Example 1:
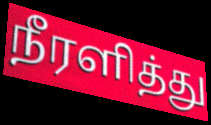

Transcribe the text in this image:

நீரளித்து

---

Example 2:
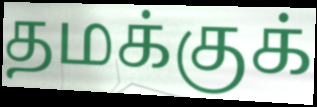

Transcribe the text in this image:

தமக்குக்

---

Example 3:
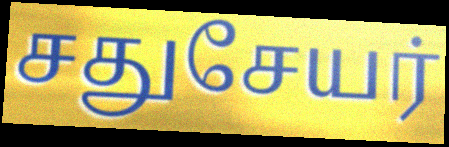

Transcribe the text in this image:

சதுசேயர்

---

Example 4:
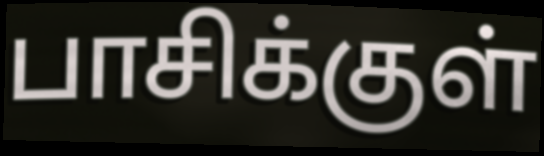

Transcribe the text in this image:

பாசிக்குள்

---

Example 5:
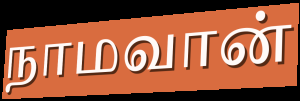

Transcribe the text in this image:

நாமவான்